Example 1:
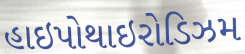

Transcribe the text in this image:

હાઇપોથાઇરોડિઝમ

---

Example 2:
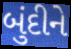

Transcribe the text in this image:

બુંદીને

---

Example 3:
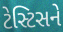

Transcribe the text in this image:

ટેસ્ટિસને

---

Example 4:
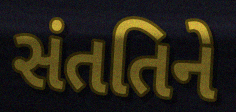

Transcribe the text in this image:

સંતતિને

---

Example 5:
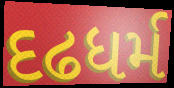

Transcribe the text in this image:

દઢધર્મ